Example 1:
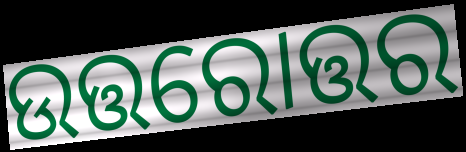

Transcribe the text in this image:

ଉତ୍ତରୋତ୍ତର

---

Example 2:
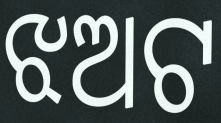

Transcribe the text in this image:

ଝଅଟ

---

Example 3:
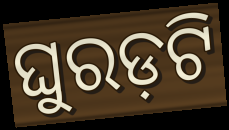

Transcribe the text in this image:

ଘୁରଡ଼ଟି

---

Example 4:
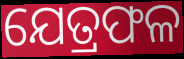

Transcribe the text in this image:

ଯେତ୍ରଫଳ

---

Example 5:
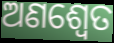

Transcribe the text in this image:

ଅଣଶ୍ୱେତ